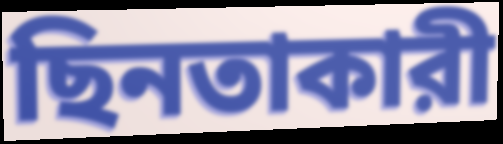
ছিনতাকারী